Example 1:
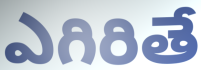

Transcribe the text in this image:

ఎగిరితే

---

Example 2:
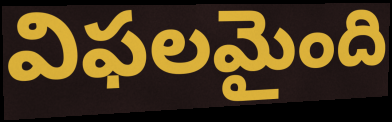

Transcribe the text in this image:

విఫలమైంది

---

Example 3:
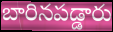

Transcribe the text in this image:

బారినపడ్డారు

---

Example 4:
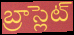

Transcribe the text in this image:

బ్రాస్లెట్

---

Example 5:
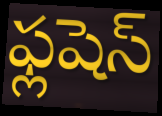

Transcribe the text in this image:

ఫ్లషెస్